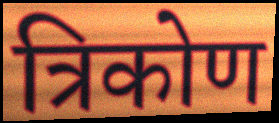
त्रिकोण